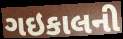
ગઇકાલની